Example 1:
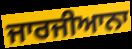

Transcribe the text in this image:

ਜਾਰਜੀਆਨਾ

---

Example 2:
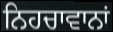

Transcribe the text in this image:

ਨਿਹਚਾਵਾਨਾਂ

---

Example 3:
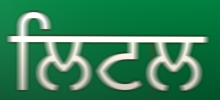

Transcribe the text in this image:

ਲਿਟਲ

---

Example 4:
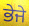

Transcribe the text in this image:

ਭੇਜੇ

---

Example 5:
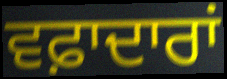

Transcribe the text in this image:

ਵਫ਼ਾਦਾਰਾਂ